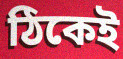
ঠিকেই